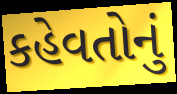
કહેવતોનું